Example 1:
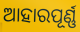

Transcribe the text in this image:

ଆହାରପୂର୍ଣ୍ଣ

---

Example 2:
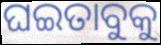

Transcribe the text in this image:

ଘଇତାବୁକୁ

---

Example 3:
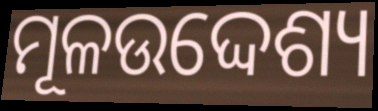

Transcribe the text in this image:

ମୂଳଉଦ୍ଦେଶ୍ୟ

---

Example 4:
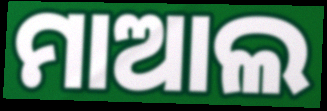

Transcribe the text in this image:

ମାଆଲ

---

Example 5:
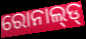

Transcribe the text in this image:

ରୋନାଲ୍‌ଡ୍